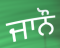
ਜਾਨੌ